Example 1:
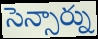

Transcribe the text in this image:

సెన్సార్ను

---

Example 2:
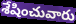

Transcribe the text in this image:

శేషించువారు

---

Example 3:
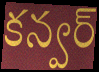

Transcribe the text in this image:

కన్వర్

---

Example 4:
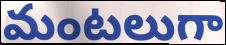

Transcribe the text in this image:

మంటలుగా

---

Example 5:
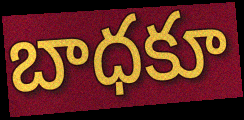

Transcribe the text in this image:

బాధకూ